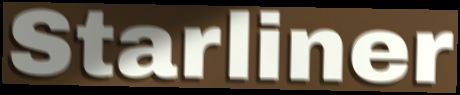
Starliner